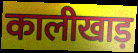
कालीखाड़